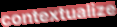
contextualize